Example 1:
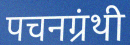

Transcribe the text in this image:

पचनग्रंथी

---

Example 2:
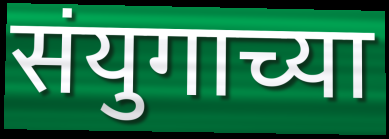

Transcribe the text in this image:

संयुगाच्या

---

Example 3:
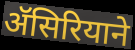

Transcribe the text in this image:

ॲसिरियाने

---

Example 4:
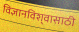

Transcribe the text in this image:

विज्ञानविश्वासाठी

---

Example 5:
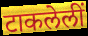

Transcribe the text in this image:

टाकलेलीं